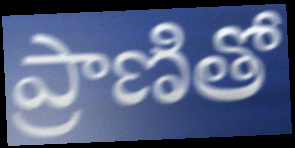
ప్రాణితో